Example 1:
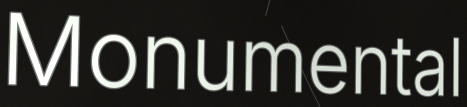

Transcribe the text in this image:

Monumental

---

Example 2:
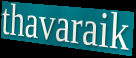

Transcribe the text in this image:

thavaraik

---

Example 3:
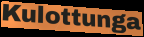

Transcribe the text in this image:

Kulottunga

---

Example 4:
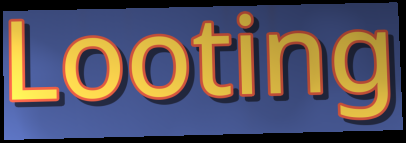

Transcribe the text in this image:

Looting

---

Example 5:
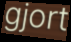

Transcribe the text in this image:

gjort